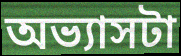
অভ্যাসটা